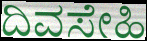
ದಿವಸೇಹಿ